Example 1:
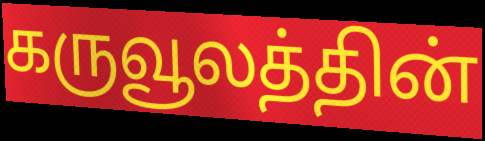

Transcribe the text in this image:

கருவூலத்தின்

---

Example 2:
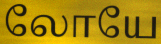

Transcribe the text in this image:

லோயே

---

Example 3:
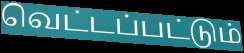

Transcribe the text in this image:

வெட்டப்பட்டும்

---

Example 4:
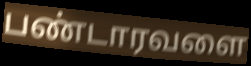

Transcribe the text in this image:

பண்டாரவளை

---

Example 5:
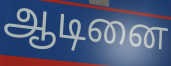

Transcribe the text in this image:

ஆடினை